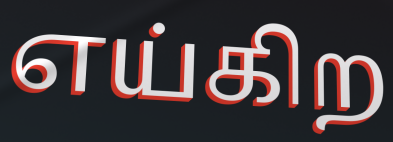
எய்கிற